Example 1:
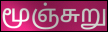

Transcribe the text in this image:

மூஞ்சுறு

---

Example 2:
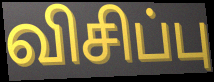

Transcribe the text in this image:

விசிப்பு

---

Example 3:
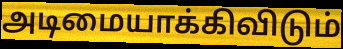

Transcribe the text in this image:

அடிமையாக்கிவிடும்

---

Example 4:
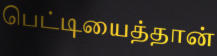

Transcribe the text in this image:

பெட்டியைத்தான்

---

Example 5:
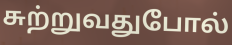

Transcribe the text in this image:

சுற்றுவதுபோல்